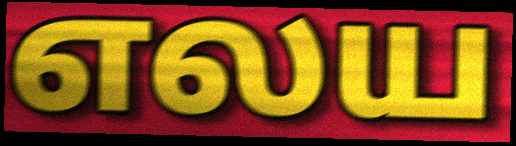
எலய